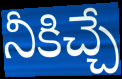
నీకిచ్చే